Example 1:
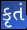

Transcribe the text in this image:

કૃતં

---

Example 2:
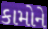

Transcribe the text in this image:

કામોને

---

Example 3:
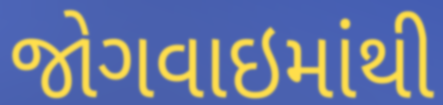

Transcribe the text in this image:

જોગવાઇમાંથી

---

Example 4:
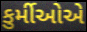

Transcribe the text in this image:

કુર્મીઓએ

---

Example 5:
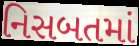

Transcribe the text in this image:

નિસબતમાં